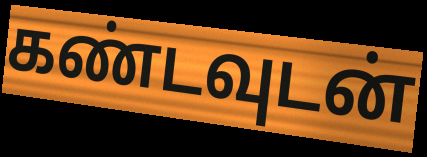
கண்டவுடன்